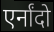
एर्नांदो